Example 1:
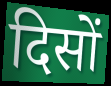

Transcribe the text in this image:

दिसों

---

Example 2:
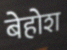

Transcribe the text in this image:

बेहोश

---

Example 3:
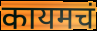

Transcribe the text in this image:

कायमचं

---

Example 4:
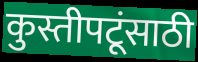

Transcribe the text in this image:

कुस्तीपटूंसाठी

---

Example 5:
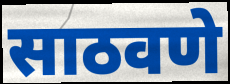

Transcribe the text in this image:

साठवणे